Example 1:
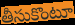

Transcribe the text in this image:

తీసుకొంటూ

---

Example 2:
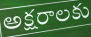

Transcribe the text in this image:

అక్షరాలకు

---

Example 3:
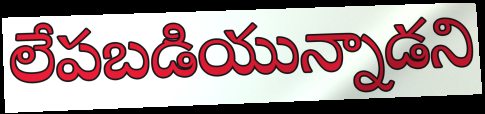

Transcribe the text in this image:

లేపబడియున్నాడని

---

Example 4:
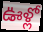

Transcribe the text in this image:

ఊళ్లో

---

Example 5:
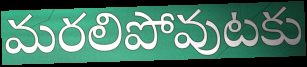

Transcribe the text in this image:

మరలిపోవుటకు